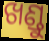
ଖଣ୍ଡୁ